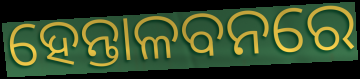
ହେନ୍ତାଳବନରେ